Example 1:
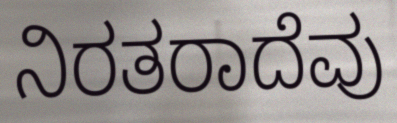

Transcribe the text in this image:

ನಿರತರಾದೆವು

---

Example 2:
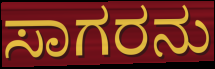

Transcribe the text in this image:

ಸಾಗರನು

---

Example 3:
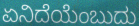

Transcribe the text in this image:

ಏನಿದೆಯೆಂಬುದು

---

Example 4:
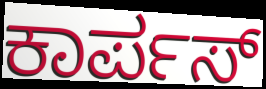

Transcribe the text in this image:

ಕಾರ್ಪಸ್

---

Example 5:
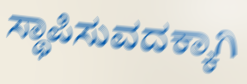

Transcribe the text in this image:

ಸ್ಥಾಪಿಸುವದಕ್ಕಾಗಿ